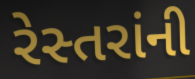
રેસ્તરાંની